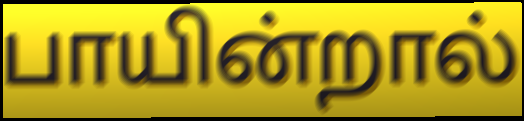
பாயின்றால்